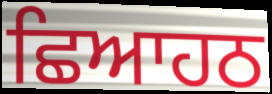
ਛਿਆਹਠ